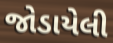
જોડાયેલી